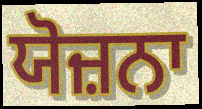
ਯੋਜ਼ਨਾ